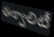
ఈక్వాలిటీ